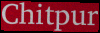
Chitpur